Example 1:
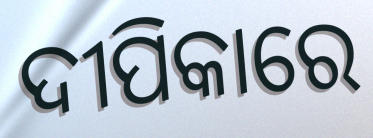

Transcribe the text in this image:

ଦୀପିକାରେ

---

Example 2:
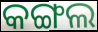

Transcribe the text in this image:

କଙ୍ଗଲ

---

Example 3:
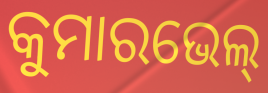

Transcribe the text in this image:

କୁମାରଭେଲ୍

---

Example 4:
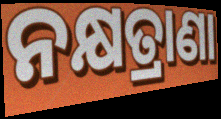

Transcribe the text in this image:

ନକ୍ଷତ୍ରାଣା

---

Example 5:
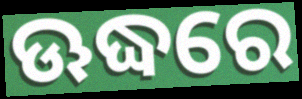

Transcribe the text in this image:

ଊଦ୍ଧରେ